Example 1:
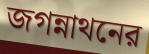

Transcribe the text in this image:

জগন্নাথনের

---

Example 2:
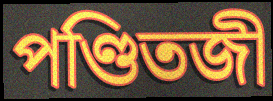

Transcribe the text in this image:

পণ্ডিতজী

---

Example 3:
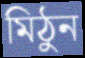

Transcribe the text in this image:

মিঠুন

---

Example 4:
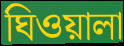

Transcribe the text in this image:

ঘিওয়ালা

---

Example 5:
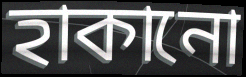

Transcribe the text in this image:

হাকানো